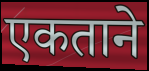
एकताने